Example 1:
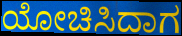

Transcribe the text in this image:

ಯೋಚಿಸಿದಾಗ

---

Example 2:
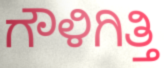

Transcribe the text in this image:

ಗೌಳಿಗಿತ್ತಿ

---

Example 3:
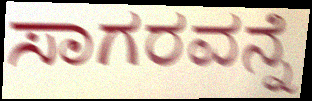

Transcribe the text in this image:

ಸಾಗರವನ್ನೆ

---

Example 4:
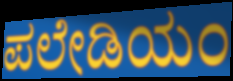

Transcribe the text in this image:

ಪಲೇಡಿಯಂ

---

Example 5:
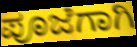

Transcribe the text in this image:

ಪೂಜೆಗಾಗಿ